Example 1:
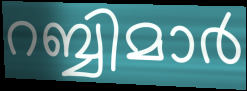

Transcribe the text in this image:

റബ്ബിമാർ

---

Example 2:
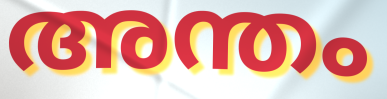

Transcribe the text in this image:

അന്തം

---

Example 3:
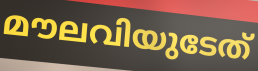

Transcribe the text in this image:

മൗലവിയുടേത്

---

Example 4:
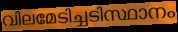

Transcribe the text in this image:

വിലമേടിച്ചടിസ്ഥാനം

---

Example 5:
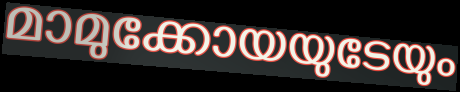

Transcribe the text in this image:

മാമുക്കോയയുടേയും